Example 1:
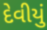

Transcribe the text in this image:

દેવીયું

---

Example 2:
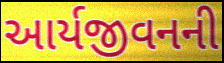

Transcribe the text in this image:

આર્યજીવનની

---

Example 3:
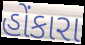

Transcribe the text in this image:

હોંકારા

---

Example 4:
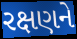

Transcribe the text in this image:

રક્ષણને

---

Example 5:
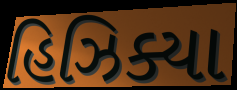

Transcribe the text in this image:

હિઝિક્યા